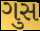
ગુસ